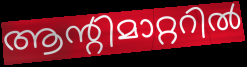
ആന്റിമാറ്ററിൽ